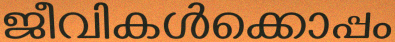
ജീവികൾക്കൊപ്പം